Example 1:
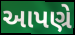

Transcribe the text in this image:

આપણ્રે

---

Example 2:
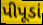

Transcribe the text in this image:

પીપૂડાં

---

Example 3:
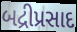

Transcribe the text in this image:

બદ્રીપ્રસાદ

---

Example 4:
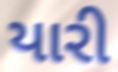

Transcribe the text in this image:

યારી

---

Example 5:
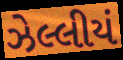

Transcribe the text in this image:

ઝેલ્લીયં